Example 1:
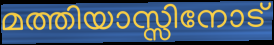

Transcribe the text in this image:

മത്തിയാസ്സിനോട്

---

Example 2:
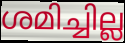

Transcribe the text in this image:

ശമിച്ചില്ല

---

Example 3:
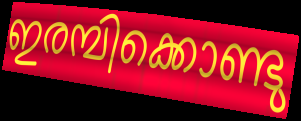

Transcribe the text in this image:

ഇരമ്പിക്കൊണ്ടു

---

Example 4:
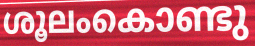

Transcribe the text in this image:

ശൂലംകൊണ്ടു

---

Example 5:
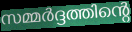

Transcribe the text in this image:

സമ്മർദ്ദത്തിന്റെ